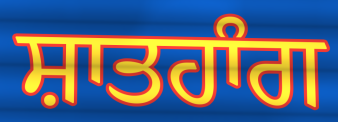
ਸ਼ਾਤਹਾੰਗ